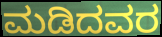
ಮಡಿದವರ